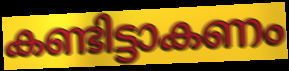
കണ്ടിട്ടാകണം